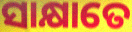
ସାକ୍ଷାତେ